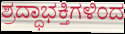
ಶ್ರದ್ಧಾಭಕ್ತಿಗಳಿಂದ